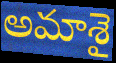
అమాశై